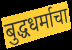
बुद्धधर्माचा